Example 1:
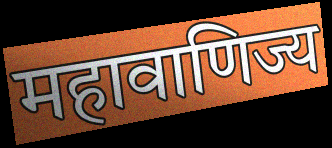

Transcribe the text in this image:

महावाणिज्य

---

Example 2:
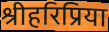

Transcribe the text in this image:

श्रीहरिप्रिया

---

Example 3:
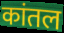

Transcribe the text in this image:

कांतल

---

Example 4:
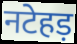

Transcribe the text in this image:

नटेहड़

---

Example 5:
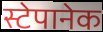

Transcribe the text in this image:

स्टेपानेक